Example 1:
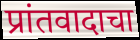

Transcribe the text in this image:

प्रांतवादाचा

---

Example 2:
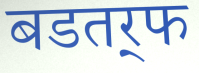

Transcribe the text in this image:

बडतर्फ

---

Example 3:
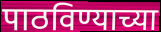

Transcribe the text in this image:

पाठविण्याच्या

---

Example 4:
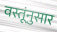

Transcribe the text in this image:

वस्तूंनुसार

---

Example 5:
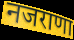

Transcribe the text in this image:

नजराणा